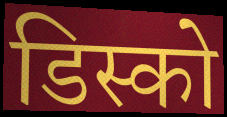
डिस्को